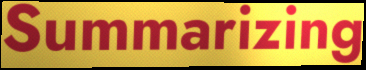
Summarizing